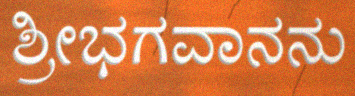
ಶ್ರೀಭಗವಾನನು